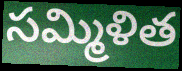
సమ్మిళిత